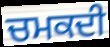
ਚਮਕਦੀ